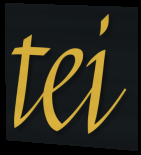
tei